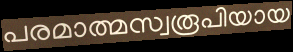
പരമാത്മസ്വരൂപിയായ